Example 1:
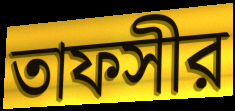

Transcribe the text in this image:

তাফসীর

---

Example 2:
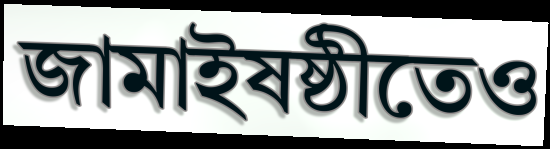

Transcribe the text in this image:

জামাইষষ্ঠীতেও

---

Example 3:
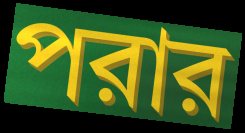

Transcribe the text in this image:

পরার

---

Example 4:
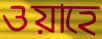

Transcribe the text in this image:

ওয়াহে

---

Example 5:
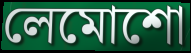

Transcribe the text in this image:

লেমোশো